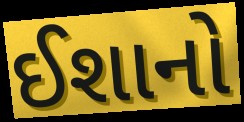
ઈશાનો